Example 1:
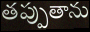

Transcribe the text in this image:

తప్పుతాను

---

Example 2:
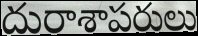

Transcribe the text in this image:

దురాశాపరులు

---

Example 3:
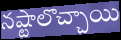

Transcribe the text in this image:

నష్టాలొచ్చాయి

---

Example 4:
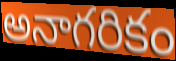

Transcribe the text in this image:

అనాగరికం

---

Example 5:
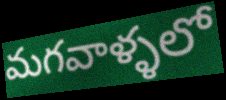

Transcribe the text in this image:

మగవాళ్ళలో